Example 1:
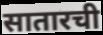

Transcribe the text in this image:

सातारची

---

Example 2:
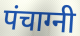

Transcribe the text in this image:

पंचाग्नी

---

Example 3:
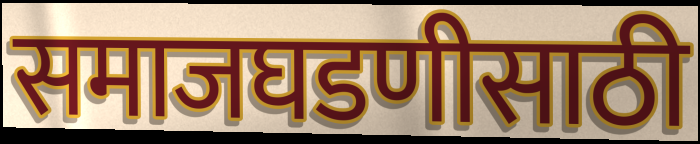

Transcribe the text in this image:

समाजघडणीसाठी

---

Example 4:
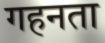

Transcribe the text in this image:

गहनता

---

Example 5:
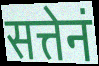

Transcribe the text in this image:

सत्तेनं